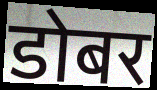
डोबर